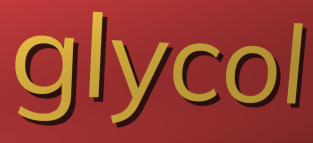
glycol